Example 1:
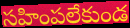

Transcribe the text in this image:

సహింపలేకుండ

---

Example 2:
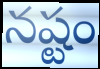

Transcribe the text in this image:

నష్టం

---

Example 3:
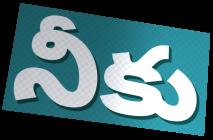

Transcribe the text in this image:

నీకు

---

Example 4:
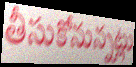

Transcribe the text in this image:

తీసుకోనున్నట్లు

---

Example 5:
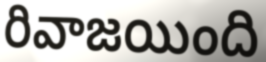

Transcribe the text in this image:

రివాజయింది